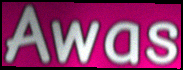
Awas